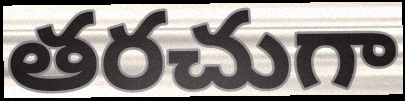
తరచుగా